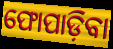
ଫୋପାଡ଼ିବା